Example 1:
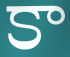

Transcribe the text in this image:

కా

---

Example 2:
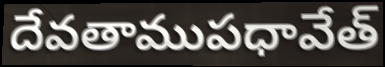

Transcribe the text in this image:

దేవతాముపధావేత్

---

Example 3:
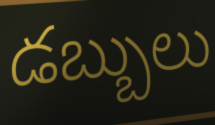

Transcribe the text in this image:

డబ్బులు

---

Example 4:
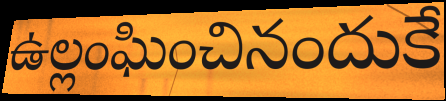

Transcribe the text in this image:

ఉల్లంఘించినందుకే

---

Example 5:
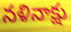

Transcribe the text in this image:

నళినాక్షు